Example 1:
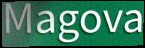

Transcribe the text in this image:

Magova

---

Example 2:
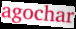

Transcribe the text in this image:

agochar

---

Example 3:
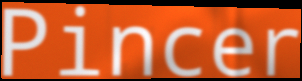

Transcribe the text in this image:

Pincer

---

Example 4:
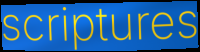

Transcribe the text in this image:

scriptures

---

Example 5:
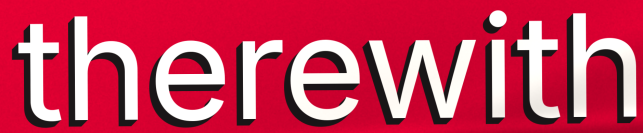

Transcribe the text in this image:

therewith